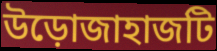
উড়োজাহাজটি